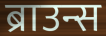
ब्राउन्स